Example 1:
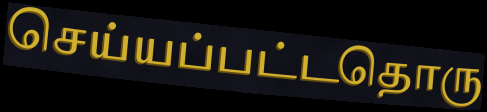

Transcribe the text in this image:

செய்யப்பட்டதொரு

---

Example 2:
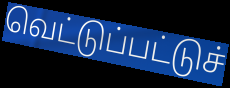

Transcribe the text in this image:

வெட்டுப்பட்டுச்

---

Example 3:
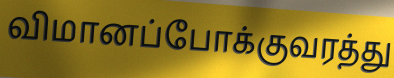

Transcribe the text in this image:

விமானப்போக்குவரத்து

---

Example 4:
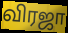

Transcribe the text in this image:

விரஜா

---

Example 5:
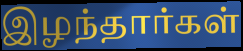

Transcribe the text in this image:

இழந்தார்கள்